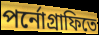
পর্নোগ্রাফিতে